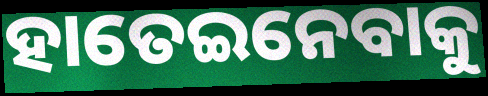
ହାତେଇନେବାକୁ